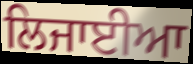
ਲਿਜਾਈਆ